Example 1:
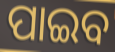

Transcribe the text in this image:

ପାଇବ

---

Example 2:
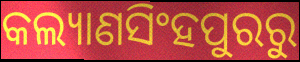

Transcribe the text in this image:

କଲ୍ୟାଣସିଂହପୁରରୁ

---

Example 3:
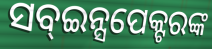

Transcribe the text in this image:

ସବ୍ଇନ୍ସପେକ୍ଟରଙ୍କ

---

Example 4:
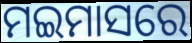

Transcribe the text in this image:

ମଇମାସରେ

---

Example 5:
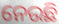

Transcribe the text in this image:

ନେଉଛି